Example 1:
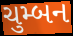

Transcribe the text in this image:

ચુમ્બન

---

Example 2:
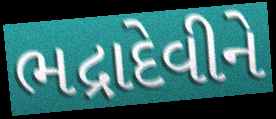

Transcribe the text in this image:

ભદ્રાદેવીને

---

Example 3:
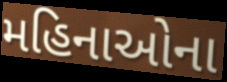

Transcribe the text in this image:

મહિનાઓના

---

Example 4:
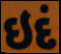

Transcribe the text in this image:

ઇદં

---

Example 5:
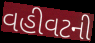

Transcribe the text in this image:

વહીવટની